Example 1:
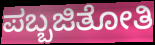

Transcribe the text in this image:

ಪಬ್ಬಜಿತೋತಿ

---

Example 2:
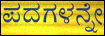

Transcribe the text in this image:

ಪದಗಳನ್ನೇ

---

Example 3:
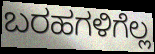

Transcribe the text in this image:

ಬರಹಗಳಿಗೆಲ್ಲ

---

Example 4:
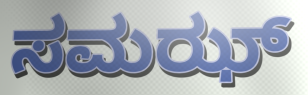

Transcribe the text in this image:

ಸಮಝ್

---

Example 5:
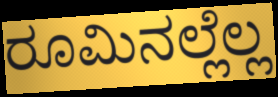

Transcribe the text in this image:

ರೂಮಿನಲ್ಲೆಲ್ಲ